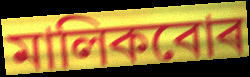
মালিকবোৰ